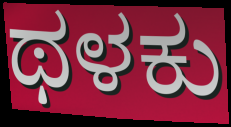
ಥಳಕು